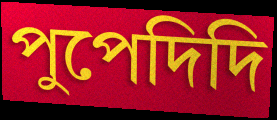
পুপেদিদি